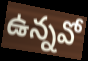
ఉన్నవో